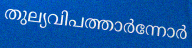
തുല്യവിപത്താർന്നോർ